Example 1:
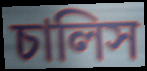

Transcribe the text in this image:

চালিস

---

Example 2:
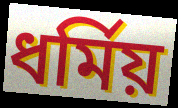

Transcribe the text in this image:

ধর্মিয়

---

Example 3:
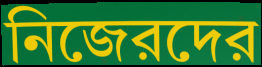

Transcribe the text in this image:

নিজেরদের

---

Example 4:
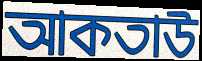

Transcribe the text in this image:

আকতাউ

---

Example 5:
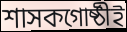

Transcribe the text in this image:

শাসকগোষ্ঠীই